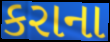
કરાના